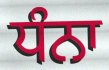
ਧੰਨਾ